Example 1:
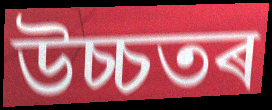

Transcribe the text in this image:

উচ্চতৰ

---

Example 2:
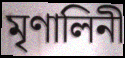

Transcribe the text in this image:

মৃণালিনী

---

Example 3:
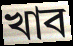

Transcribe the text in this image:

খাব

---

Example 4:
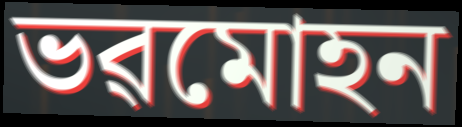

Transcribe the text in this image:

ভৱমোহন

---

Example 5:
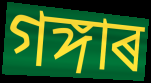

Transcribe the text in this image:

গঙ্গাৰ